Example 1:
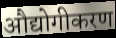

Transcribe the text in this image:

औद्योगीकरण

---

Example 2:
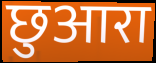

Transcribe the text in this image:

छुआरा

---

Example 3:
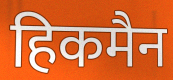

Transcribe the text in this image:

हिकमैन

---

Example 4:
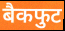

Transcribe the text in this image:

बैकफुट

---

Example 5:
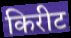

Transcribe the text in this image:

किरीट